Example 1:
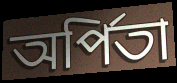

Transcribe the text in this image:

অর্পিতা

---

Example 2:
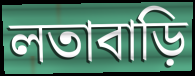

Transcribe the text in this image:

লতাবাড়ি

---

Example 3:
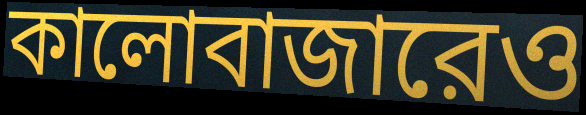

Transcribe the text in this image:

কালোবাজারেও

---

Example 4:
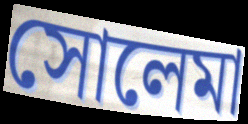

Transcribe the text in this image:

সোলেমা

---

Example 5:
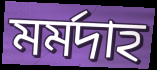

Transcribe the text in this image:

মর্মদাহ